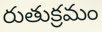
రుతుక్రమం